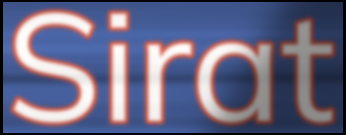
Sirat